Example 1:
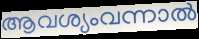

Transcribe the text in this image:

ആവശ്യംവന്നാൽ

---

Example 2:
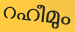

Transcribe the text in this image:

റഹീമും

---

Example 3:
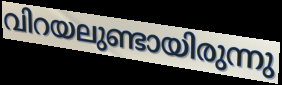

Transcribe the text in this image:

വിറയലുണ്ടായിരുന്നു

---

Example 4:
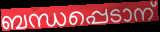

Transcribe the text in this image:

ബന്ധപ്പെടാന്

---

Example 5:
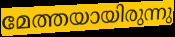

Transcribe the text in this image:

മേത്തയായിരുന്നു